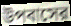
উপবাসের